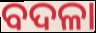
ବଦଳା